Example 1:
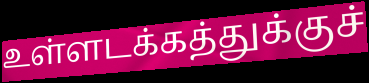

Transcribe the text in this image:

உள்ளடக்கத்துக்குச்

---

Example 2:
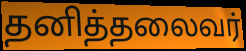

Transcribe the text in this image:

தனித்தலைவர்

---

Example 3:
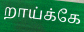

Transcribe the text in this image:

றாய்க்கே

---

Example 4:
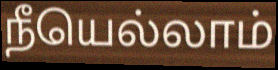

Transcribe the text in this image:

நீயெல்லாம்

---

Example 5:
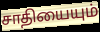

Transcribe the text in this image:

சாதியையும்